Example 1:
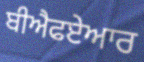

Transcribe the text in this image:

ਬੀਐਫਏਆਰ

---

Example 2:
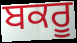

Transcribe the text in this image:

ਬਕਰੂ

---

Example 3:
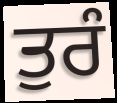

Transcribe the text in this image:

ਤੁਰੰ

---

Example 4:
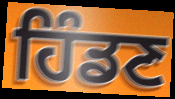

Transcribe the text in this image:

ਹਿੰਡਣ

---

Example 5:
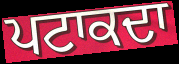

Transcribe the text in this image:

ਪਟਾਕਦਾ